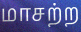
மாசற்ற